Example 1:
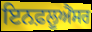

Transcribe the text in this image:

ਇਨਫ਼ਲੂਐਂਸਰ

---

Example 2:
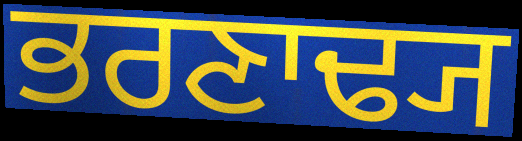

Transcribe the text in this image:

ਭਰਣਾਢ੍ਯ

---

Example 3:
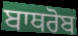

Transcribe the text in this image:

ਬਾਥਰੋਬ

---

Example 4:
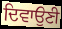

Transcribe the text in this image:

ਦਿਵਾਉਣੀ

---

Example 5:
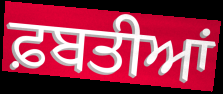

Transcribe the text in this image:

ਫ਼ਬਤੀਆਂ